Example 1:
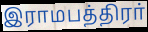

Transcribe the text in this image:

இராமபத்திரர்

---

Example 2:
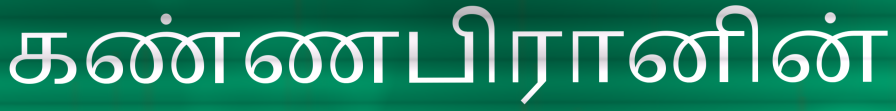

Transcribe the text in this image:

கண்ணபிரானின்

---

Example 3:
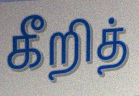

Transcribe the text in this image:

கீறித்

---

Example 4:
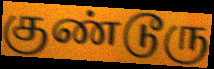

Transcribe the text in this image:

குண்டூரு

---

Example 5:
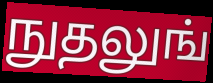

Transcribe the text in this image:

நுதலுங்